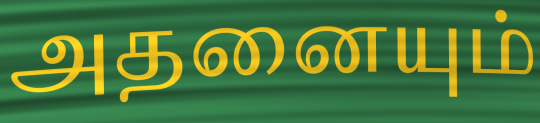
அதனையும்